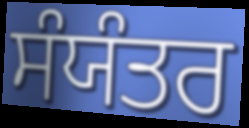
ਸੰਯੰਤਰ